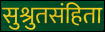
सुश्रुतसंहिता